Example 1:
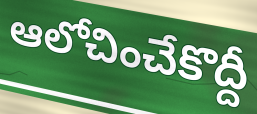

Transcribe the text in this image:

ఆలోచించేకొద్దీ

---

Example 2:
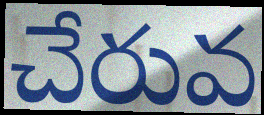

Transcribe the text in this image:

చేరువ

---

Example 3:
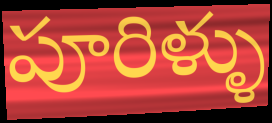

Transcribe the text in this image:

పూరిళ్ళు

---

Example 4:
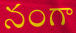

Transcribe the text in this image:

నంగా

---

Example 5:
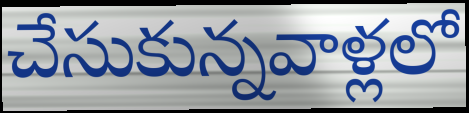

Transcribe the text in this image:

చేసుకున్నవాళ్లలో